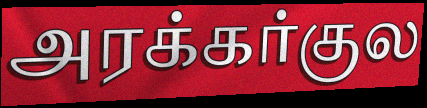
அரக்கர்குல